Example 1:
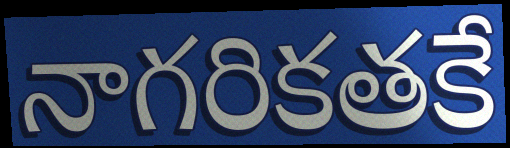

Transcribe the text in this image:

నాగరికతకే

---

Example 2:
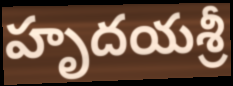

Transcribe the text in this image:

హృదయశ్రీ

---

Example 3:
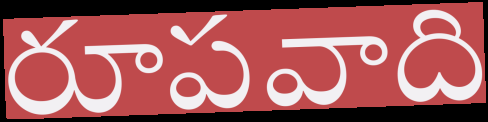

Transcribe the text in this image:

రూపవాది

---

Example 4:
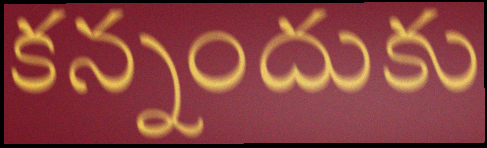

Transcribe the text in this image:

కన్నందుకు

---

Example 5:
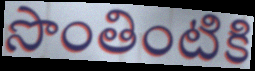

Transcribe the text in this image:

సొంతింటికి